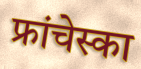
फ्रांचेस्का